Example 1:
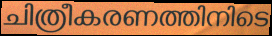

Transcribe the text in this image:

ചിത്രീകരണത്തിനിടെ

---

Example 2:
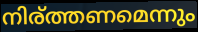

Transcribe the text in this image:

നിര്ത്തണമെന്നും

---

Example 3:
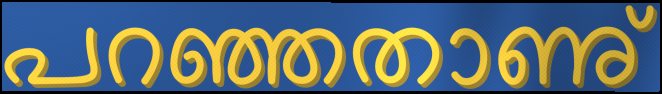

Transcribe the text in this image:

പറഞ്ഞതാണു്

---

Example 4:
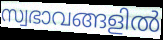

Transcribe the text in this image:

സ്വഭാവങ്ങളിൽ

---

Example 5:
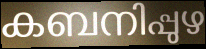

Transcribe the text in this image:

കബനിപ്പുഴ